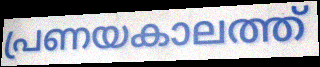
പ്രണയകാലത്ത്